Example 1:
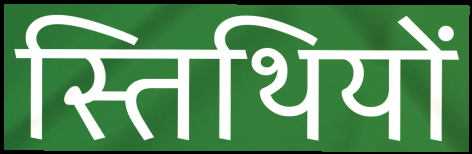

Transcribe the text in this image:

स्तिथियों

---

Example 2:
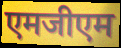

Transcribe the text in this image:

एमजीएम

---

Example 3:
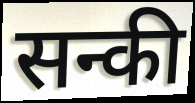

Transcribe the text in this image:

सन्की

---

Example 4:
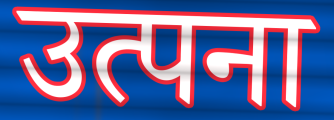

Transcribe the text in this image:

उत्पना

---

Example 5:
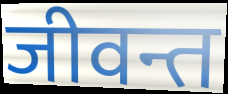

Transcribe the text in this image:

जीवन्त